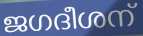
ജഗദീശന്